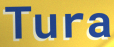
Tura